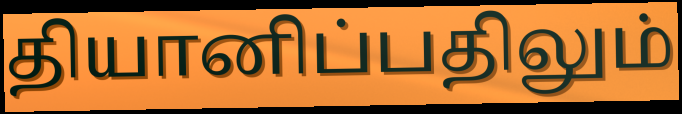
தியானிப்பதிலும்